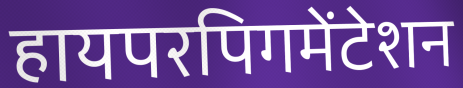
हायपरपिगमेंटेशन